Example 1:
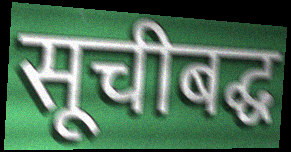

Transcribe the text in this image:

सूचीबद्घ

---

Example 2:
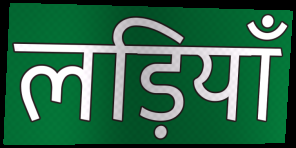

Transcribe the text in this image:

लड़ियाँ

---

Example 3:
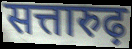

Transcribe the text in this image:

सत्तारुढ़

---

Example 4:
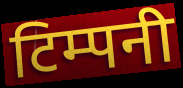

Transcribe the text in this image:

टिम्पनी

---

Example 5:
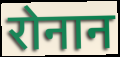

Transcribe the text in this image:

रोनान